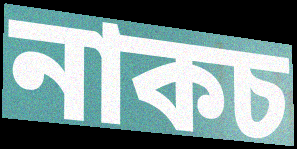
নাকচ